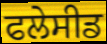
ਫਲੇਸੀਡ